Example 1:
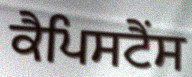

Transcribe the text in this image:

ਕੈਪਿਸਟੈਂਸ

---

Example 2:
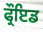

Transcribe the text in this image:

ਫ੍ਰੌਇਡ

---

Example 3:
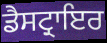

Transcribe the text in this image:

ਡੈਸਟ੍ਰਾਇਰ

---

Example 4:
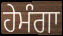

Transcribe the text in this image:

ਹੇਮੰਗਾ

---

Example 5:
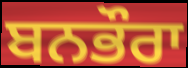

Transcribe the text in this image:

ਬਨਭੌਰਾ